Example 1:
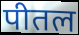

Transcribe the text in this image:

पीतल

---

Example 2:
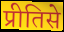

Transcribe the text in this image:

प्रीतिसे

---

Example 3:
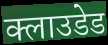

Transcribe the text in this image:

क्लाउडेड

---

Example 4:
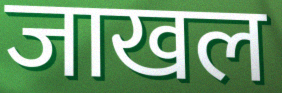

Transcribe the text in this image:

जाखल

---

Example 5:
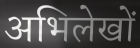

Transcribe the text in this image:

अभिलेखों